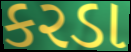
કરડા